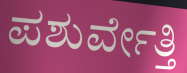
ಪಶುರ್ವೇತ್ತಿ